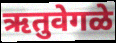
ऋतुवेगळे